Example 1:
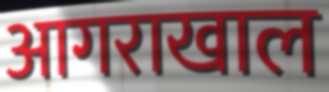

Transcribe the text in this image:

आगराखाल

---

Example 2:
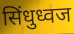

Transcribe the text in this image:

सिंधुध्वज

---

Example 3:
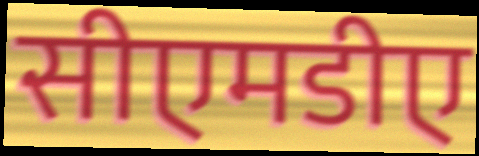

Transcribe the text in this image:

सीएमडीए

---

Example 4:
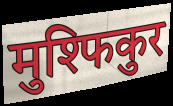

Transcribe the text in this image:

मुश्फिकुर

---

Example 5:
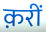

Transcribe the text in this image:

क़रीं